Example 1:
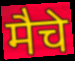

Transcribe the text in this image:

मैचे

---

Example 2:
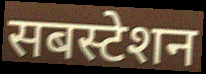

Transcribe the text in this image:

सबस्टेशन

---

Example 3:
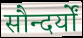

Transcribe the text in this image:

सौन्दर्यों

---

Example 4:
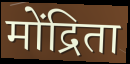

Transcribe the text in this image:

मोंद्रिता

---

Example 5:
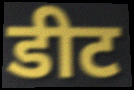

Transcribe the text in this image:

डीट